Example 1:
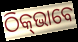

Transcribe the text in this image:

ଠିକ୍‍ଭାବେ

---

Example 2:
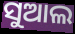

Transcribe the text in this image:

ସୁଆଲ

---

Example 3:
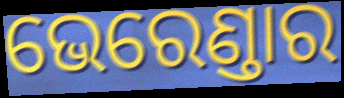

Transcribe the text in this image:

ଭେରେଣ୍ଡାର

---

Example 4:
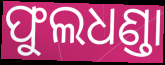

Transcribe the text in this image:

ଫୁଲଧଣ୍ଡା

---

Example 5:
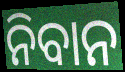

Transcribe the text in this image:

ନିବାନ